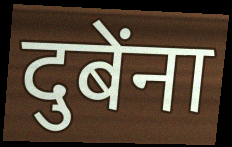
दुबेंना